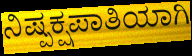
ನಿಷ್ಪಕ್ಷಪಾತಿಯಾಗಿ